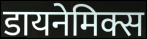
डायनेमिक्स